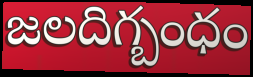
జలదిగ్బంధం